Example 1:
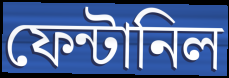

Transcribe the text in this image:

ফেন্টানিল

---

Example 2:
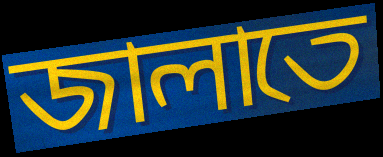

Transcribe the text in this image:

জালাতে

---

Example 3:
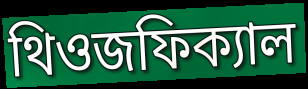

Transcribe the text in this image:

থিওজফিক্যাল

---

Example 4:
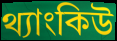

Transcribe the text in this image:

থ্যাংকিউ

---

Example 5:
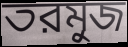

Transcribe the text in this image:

তরমুজ